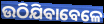
ଉଠିଯିବାବେଳେ